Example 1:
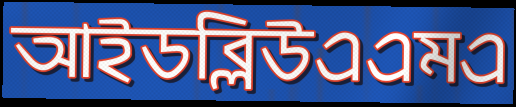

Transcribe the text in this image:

আইডব্লিউএএমএ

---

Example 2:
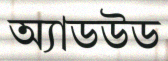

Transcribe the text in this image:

অ্যাডউড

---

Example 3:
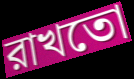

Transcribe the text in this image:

রাখতো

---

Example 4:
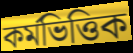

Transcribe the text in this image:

কর্মভিত্তিক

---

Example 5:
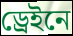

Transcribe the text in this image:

ড্রেইনে